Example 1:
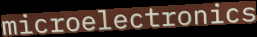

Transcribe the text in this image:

microelectronics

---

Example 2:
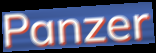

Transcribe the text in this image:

Panzer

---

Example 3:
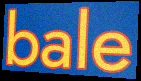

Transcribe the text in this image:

bale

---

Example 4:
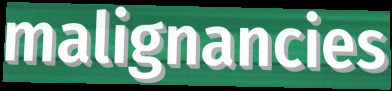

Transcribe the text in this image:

malignancies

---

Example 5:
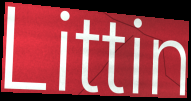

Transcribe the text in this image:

Littin